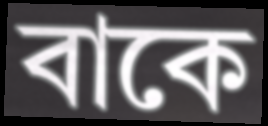
বাকে